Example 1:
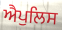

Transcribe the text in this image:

ਐਪੁਲਿਸ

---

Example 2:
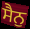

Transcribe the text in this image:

ਸੈਨੁ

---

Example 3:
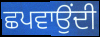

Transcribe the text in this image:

ਛਪਵਾਉਂਦੀ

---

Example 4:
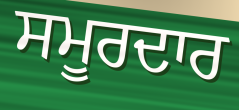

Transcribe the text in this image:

ਸਮੂਰਦਾਰ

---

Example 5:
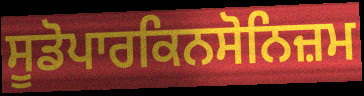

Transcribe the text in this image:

ਸੂਡੋਪਾਰਕਿਨਸੋਨਿਜ਼ਮ